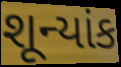
શૂન્યાંક